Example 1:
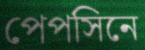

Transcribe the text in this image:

পেপসিনে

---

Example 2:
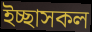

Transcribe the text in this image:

ইচ্ছাসকল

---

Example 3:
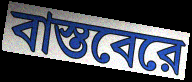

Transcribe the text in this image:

বাস্তবেরে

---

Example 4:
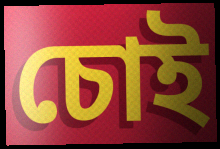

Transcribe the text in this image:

চোই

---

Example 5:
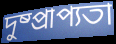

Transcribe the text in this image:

দুষ্প্রাপ্যতা